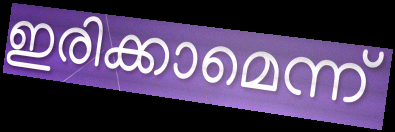
ഇരിക്കാമെന്ന്